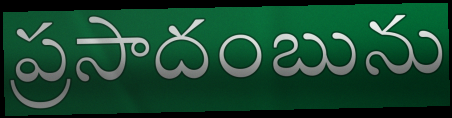
ప్రసాదంబును